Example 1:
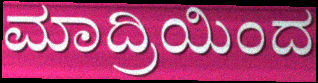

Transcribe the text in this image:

ಮಾದ್ರಿಯಿಂದ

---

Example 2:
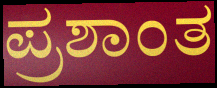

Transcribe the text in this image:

ಪ್ರಶಾಂತ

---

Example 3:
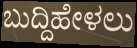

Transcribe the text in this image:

ಬುದ್ದಿಹೇಳಲು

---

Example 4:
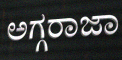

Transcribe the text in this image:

ಅಗ್ಗರಾಜಾ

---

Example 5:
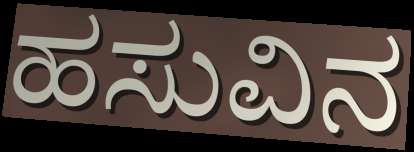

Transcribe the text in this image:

ಹಸುವಿನ